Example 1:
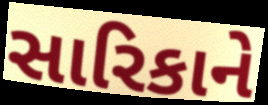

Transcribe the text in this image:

સારિકાને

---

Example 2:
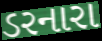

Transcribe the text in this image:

ડરનારા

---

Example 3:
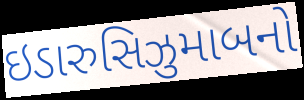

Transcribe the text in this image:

ઇડારુસિઝુમાબનો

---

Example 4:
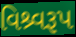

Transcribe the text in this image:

વિશ્ર્વરૂપ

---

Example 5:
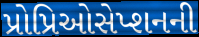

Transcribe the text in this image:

પ્રોપ્રિઓસેપ્શનની